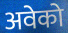
अवेको